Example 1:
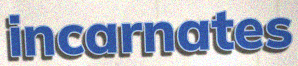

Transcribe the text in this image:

incarnates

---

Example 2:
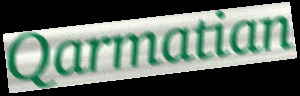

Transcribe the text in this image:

Qarmatian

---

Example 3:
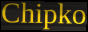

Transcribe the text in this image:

Chipko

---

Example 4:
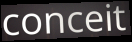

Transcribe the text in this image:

conceit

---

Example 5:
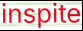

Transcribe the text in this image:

inspite